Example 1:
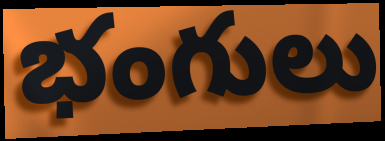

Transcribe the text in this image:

భంగులు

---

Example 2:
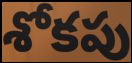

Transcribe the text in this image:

శోకపు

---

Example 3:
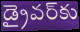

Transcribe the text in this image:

డ్రైవర్‌కు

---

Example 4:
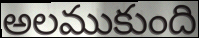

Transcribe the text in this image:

అలముకుంది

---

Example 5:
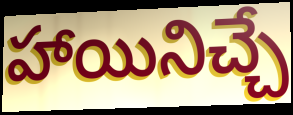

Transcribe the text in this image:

హాయినిచ్చే